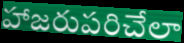
హాజరుపరిచేలా